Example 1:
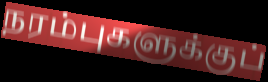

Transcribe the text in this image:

நரம்புகளுக்குப்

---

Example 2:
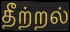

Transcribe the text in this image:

தீற்றல்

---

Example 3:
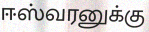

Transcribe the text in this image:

ஈஸ்வரனுக்கு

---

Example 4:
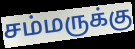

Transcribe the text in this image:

சம்மருக்கு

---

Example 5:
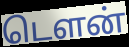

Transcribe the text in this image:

டௌன்